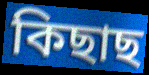
কিছাছ